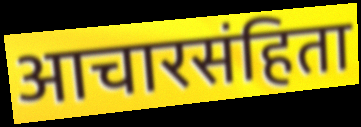
आचारसंहिता